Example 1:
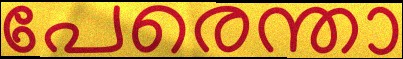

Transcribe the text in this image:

പേരെന്താ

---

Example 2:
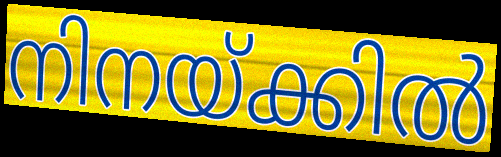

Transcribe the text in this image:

നിനയ്ക്കിൽ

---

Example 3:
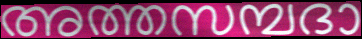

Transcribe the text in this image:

അത്തസമ്പദാ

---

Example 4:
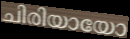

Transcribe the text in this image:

ചിരിയായോ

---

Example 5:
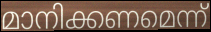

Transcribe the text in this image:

മാനിക്കണമെന്ന്